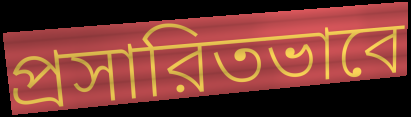
প্রসারিতভাবে